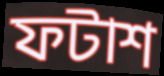
ফটাশ